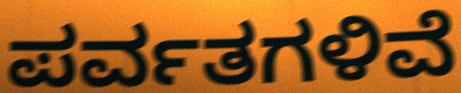
ಪರ್ವತಗಳಿವೆ